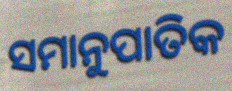
ସମାନୁପାତିକ